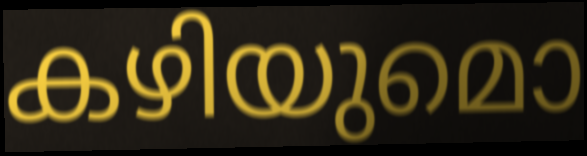
കഴിയുമൊ